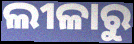
ଲୀଳାରୁ